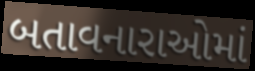
બતાવનારાઓમાં